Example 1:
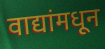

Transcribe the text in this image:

वाद्यांमधून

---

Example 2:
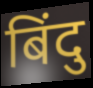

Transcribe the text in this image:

बिंदु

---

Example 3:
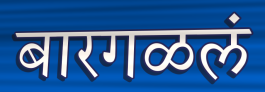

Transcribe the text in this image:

बारगळलं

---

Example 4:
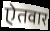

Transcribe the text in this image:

ऐतवार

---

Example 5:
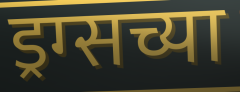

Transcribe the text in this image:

ड्रग्सच्या